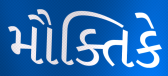
મૌક્તિકે